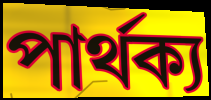
পাৰ্থক্য়